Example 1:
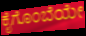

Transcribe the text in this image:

ಕೈಗೊಂಬೆಯೇ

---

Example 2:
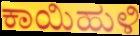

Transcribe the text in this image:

ಕಾಯಿಹುಳಿ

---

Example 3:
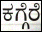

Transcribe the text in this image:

ಕಗ್ಗೆರೆ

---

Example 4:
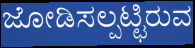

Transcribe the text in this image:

ಜೋಡಿಸಲ್ಪಟ್ಟಿರುವ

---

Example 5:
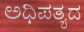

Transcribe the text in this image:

ಅಧಿಪತ್ಯದ